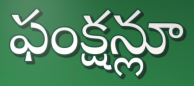
ఫంక్షన్లూ